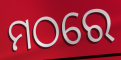
ମଠରେ